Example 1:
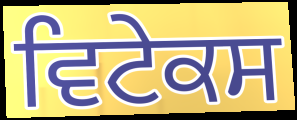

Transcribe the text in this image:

ਵਿਟੇਕਸ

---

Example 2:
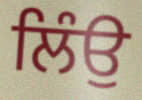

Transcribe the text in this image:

ਲਿੰਉ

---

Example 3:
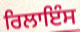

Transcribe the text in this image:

ਰਿਲਾਇੰਸ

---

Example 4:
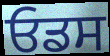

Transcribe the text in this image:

ਓਡਸ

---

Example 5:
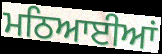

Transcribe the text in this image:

ਮਠਿਆਈਆਂ